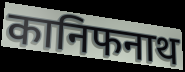
कानिफनाथ